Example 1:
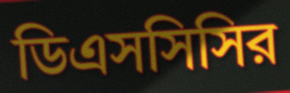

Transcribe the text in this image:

ডিএসসিসির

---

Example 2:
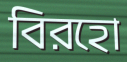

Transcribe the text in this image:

বিরহো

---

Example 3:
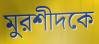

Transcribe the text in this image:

মুরশীদকে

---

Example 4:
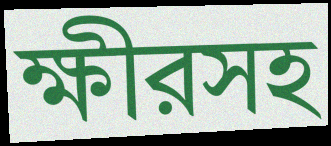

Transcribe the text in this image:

ক্ষীরসহ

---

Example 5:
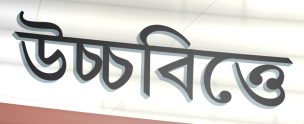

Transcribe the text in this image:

উচ্চবিত্তে